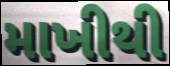
માખીથી